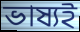
ভাষ্যই